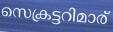
സെക്രട്ടറിമാര്